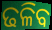
ଢଳିବ